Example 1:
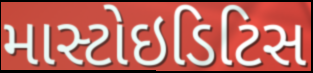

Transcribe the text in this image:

માસ્ટોઇડિટિસ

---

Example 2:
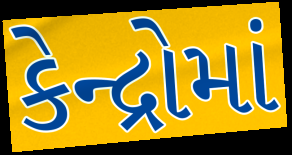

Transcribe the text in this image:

કેન્દ્રોમાં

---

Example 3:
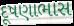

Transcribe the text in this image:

દૂષણાભાસ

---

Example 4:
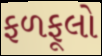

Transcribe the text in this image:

ફળફૂલો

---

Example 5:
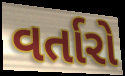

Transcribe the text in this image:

વર્તારો